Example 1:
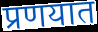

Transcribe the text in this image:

प्रणयात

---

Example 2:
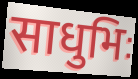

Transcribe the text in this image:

साधुभिः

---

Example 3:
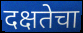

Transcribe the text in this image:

दक्षतेचा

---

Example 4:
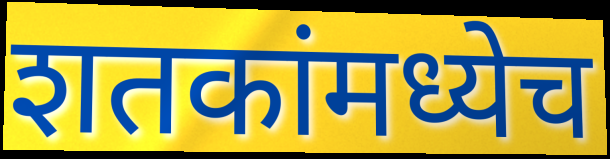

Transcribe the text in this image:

शतकांमध्येच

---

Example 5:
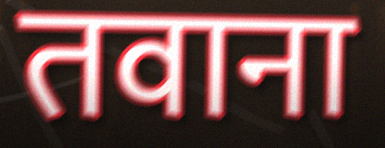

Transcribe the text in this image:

तवाना